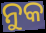
ନୁକ